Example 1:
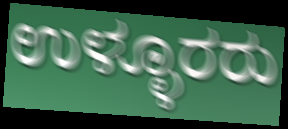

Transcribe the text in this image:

ಉಳ್ಳೂರರು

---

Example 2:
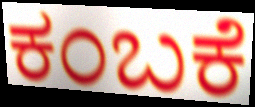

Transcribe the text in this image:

ಕಂಬಕೆ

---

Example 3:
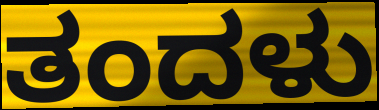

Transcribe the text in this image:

ತಂದಳು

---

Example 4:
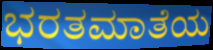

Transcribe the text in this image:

ಭರತಮಾತೆಯ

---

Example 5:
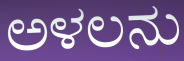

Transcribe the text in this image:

ಅಳಲನು